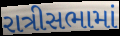
રાત્રીસભામાં